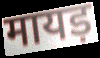
मायड़